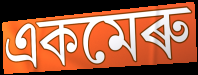
একমেৰু